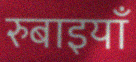
रुबाइयाँ